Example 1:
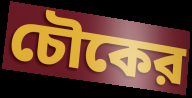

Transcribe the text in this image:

চৌকের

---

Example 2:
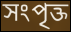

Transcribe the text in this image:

সংপৃক্ত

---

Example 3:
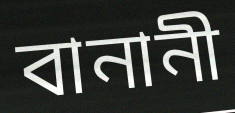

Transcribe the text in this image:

বানানী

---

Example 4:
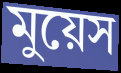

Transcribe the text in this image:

মুয়েস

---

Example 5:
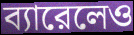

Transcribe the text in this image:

ব্যারেলেও